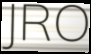
JRO